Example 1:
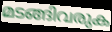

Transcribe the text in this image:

മടങ്ങിവരുക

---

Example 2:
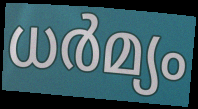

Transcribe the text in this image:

ധർമ്യം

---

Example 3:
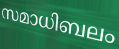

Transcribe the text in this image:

സമാധിബലം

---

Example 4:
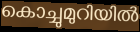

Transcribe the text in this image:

കൊച്ചുമുറിയിൽ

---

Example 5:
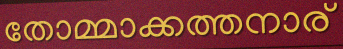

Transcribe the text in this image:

തോമ്മാക്കത്തനാര്